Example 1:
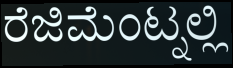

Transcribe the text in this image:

ರೆಜಿಮೆಂಟ್ನಲ್ಲಿ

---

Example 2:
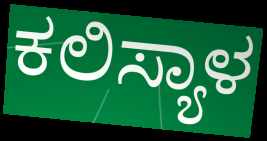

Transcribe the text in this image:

ಕಲಿಸ್ಯಾಳ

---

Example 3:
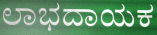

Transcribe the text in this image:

ಲಾಭದಾಯಕ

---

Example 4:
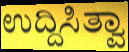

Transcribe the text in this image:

ಉದ್ದಿಸಿತ್ವಾ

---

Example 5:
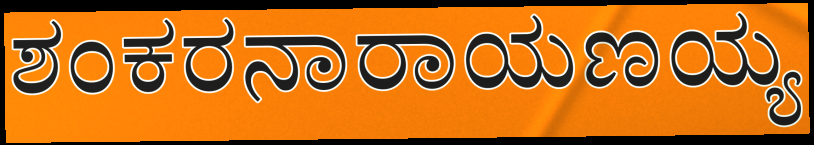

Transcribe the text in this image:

ಶಂಕರನಾರಾಯಣಯ್ಯ